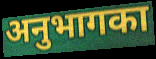
अनुभागका